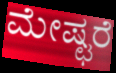
ಮೇಷ್ಟರೆ